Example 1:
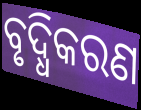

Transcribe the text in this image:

ବୃଦ୍ଧିକରଣ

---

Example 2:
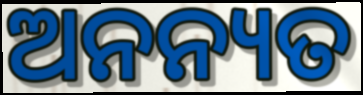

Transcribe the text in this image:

ଅନନ୍ୟତ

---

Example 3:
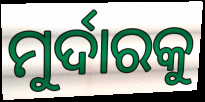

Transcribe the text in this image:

ମୁର୍ଦାରକୁ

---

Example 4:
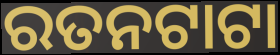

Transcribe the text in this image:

ରତନଟାଟା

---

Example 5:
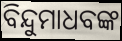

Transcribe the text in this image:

ବିନ୍ଦୁମାଧବଙ୍କ